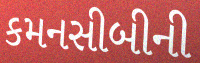
કમનસીબીની